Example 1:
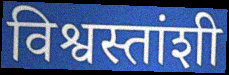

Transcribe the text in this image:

विश्वस्तांशी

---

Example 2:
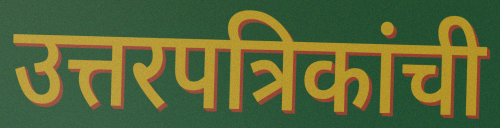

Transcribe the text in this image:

उत्तरपत्रिकांची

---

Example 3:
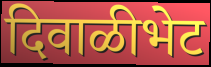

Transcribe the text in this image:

दिवाळीभेट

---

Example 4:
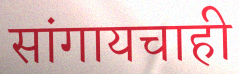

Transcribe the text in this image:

सांगायचाही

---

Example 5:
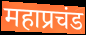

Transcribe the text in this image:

महाप्रचंड